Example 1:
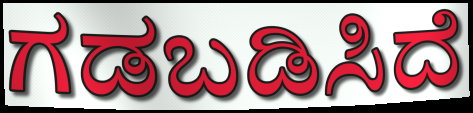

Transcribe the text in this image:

ಗಡಬಡಿಸಿದೆ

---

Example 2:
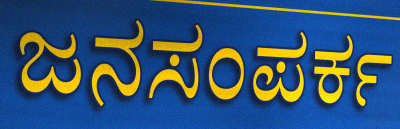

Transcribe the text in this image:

ಜನಸಂಪರ್ಕ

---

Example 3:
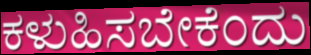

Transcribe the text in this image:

ಕಳುಹಿಸಬೇಕೆಂದು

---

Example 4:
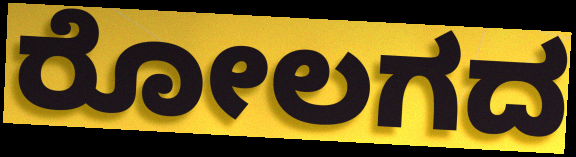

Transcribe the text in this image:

ರೋಲಗದ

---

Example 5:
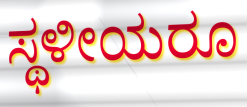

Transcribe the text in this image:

ಸ್ಥಳೀಯರೂ